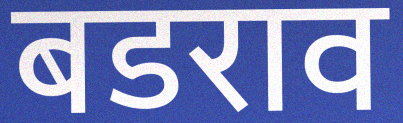
बडराव